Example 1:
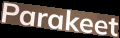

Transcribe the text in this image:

Parakeet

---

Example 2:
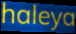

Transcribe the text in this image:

haleya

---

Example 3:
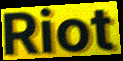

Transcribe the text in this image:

Riot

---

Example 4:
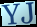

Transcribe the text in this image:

YJ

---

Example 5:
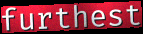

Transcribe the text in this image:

furthest